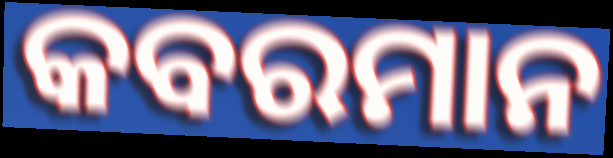
କବରମାନ